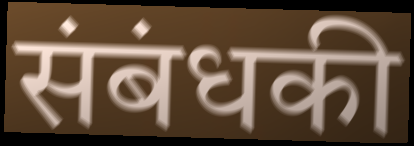
संबंधकी